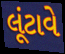
લૂંટાવે